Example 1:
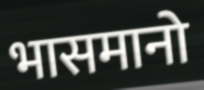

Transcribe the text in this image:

भासमानो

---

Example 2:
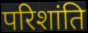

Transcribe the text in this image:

परिशांति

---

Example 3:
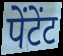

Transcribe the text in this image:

पेंटेंट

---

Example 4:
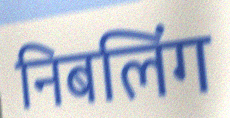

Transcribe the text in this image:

निबलिंग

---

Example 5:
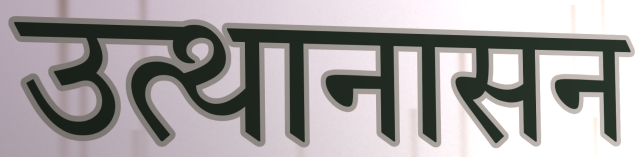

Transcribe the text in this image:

उत्थानासन